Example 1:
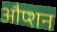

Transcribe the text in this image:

औप्शन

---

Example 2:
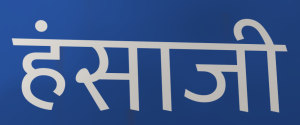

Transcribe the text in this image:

हंसाजी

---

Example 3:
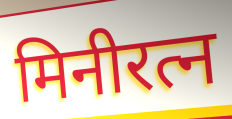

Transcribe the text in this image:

मिनीरत्न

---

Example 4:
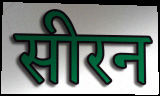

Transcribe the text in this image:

सीरन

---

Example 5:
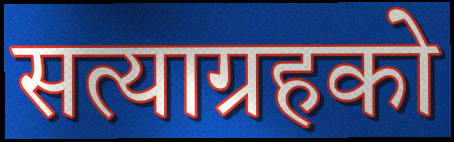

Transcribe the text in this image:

सत्याग्रहको